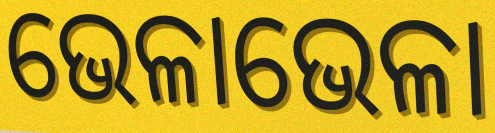
ଭେଳାଭେଳା